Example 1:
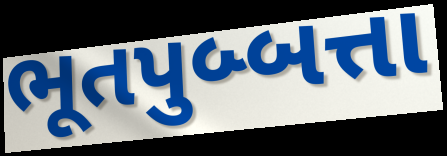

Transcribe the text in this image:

ભૂતપુબ્બત્તા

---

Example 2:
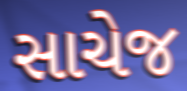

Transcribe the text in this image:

સાચેજ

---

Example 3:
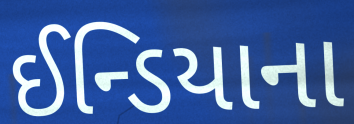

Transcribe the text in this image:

ઈન્ડિયાના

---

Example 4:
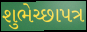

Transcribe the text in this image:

શુભેચ્છાપત્ર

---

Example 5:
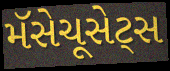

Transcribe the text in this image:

મૅસેચૂસેટ્સ